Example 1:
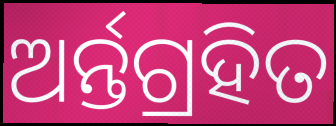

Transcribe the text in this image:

ଅର୍ନ୍ତଗ୍ରହିତ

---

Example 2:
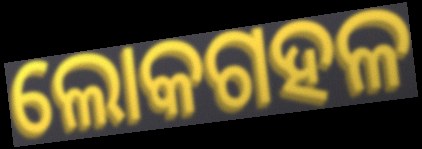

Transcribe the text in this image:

ଲୋକଗହଳ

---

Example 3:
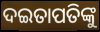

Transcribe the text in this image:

ଦଇତାପତିଙ୍କୁ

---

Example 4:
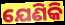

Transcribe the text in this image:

ଯେଣିକି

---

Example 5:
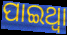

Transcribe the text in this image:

ପାଇଥ୍ବା